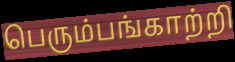
பெரும்பங்காற்றி